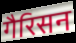
गैरिसन